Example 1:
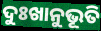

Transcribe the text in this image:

ଦୁଃଖାନୁଭୂତି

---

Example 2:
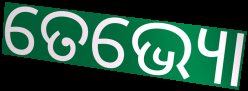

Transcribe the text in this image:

ତେଭ୍ୟୋ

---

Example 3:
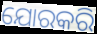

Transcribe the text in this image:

ଯୋରକରି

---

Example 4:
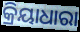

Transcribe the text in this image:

କ୍ରିୟାଧାରା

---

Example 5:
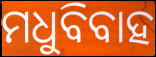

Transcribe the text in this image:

ମଧୁବିବାହ